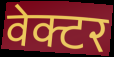
वेक्टर